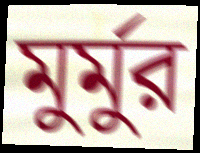
মুর্মুর